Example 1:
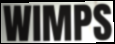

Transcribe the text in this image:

WIMPS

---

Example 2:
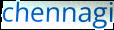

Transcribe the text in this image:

chennagi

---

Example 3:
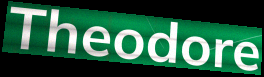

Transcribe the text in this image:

Theodore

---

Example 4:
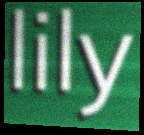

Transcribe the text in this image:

lily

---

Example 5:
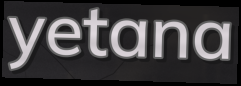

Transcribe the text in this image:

yetana